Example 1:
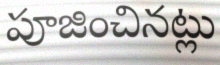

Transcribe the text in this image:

పూజించినట్లు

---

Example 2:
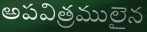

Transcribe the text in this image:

అపవిత్రములైన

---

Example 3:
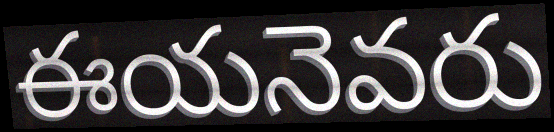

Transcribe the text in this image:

ఈయనెవరు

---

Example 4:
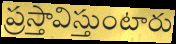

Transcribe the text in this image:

ప్రస్తావిస్తుంటారు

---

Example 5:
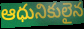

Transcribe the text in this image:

ఆధునికులైన